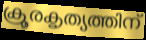
ക്രൂരകൃത്യത്തിന്